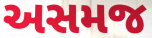
અસમજ